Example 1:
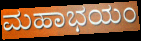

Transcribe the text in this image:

ಮಹಾಭಯಂ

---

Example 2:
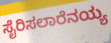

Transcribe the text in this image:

ಸೈರಿಸಲಾರೆನಯ್ಯ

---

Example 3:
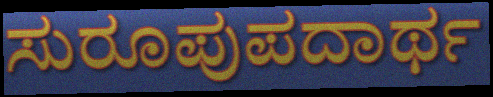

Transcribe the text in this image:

ಸುರೂಪುಪದಾರ್ಥ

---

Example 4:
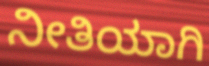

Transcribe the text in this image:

ನೀತಿಯಾಗಿ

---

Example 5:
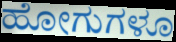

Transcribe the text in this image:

ಹೋಗುಗಳೂ